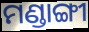
ମଣ୍ଡାଙ୍ଗୀ